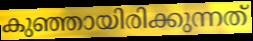
കുഞ്ഞായിരിക്കുന്നത്